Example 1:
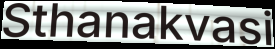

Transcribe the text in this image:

Sthanakvasi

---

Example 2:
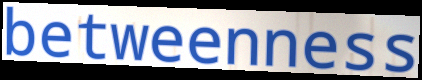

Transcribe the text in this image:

betweenness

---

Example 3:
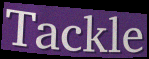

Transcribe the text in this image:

Tackle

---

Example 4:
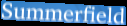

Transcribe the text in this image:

Summerfield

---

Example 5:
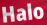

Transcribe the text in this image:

Halo